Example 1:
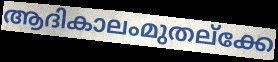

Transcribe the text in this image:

ആദികാലംമുതല്ക്കേ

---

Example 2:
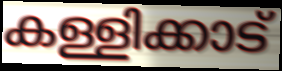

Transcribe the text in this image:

കള്ളിക്കാട്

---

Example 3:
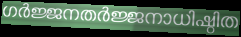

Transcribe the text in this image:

ഗർജ്ജനതർജ്ജനാധിഷ്ഠിത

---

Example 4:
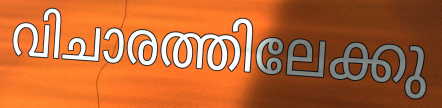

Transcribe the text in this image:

വിചാരത്തിലേക്കു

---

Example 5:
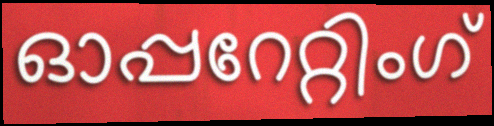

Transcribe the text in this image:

ഓപ്പറേറ്റിംഗ്